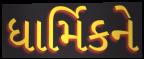
ધાર્મિકને